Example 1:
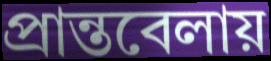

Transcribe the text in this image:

প্রান্তবেলায়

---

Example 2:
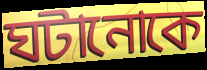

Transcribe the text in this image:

ঘটানোকে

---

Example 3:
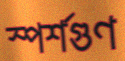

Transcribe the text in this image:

স্পর্শগুণ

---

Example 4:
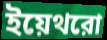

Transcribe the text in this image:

ইয়েথরো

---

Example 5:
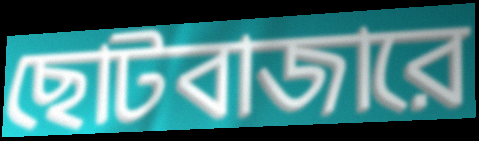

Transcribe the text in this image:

ছোটবাজারে